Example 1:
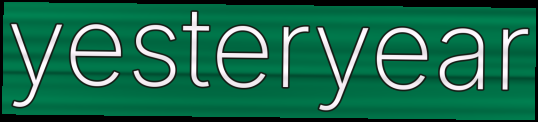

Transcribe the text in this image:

yesteryear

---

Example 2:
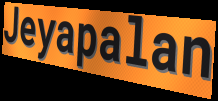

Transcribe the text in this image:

Jeyapalan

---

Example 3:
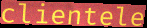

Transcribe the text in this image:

clientele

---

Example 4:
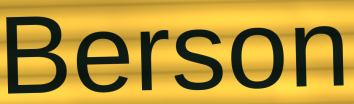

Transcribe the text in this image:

Berson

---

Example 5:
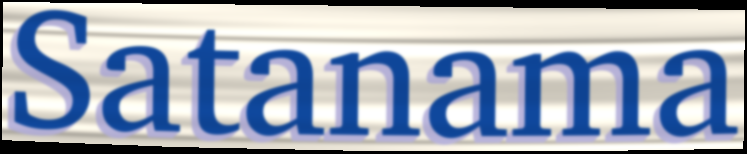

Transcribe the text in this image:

Satanama